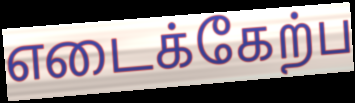
எடைக்கேற்ப